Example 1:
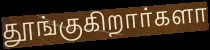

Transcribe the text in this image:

தூங்குகிறார்களா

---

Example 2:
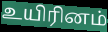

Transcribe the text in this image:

உயிரினம்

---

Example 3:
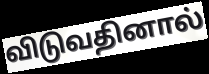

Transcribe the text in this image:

விடுவதினால்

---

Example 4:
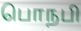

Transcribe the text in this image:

பொநபி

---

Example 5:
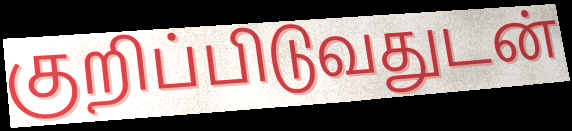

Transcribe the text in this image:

குறிப்பிடுவதுடன்